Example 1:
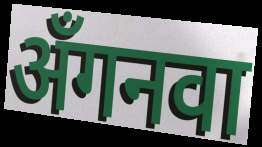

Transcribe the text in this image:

अँगनवा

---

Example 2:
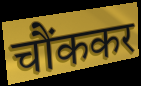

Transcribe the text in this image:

चौंककर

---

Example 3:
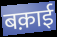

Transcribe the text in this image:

बक़ाई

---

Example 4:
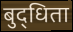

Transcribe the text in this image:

बुद्धिता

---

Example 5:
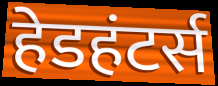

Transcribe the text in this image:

हेडहंटर्स